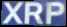
XRP